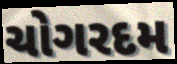
ચોગરદમ